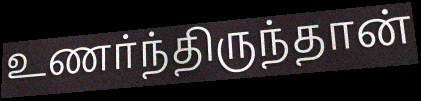
உணர்ந்திருந்தான்